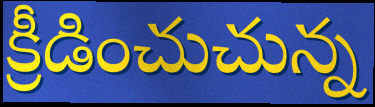
క్రీడించుచున్న